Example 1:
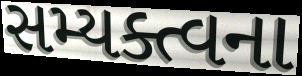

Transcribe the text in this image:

સમ્યક્ત્વના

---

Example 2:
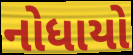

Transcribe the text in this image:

નોધાયો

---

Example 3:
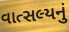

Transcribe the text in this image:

વાત્સલ્યનું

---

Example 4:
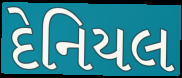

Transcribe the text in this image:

દેનિયલ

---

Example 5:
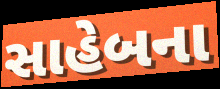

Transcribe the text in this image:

સાહેબના